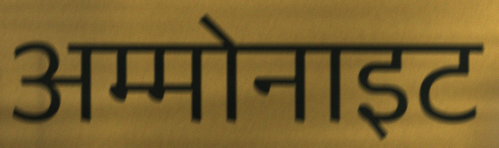
अम्मोनाइट